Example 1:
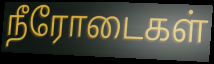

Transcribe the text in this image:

நீரோடைகள்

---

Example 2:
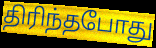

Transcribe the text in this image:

திரிந்தபோது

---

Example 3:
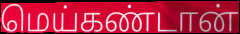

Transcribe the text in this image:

மெய்கண்டான்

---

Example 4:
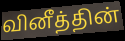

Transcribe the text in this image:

வினீத்தின்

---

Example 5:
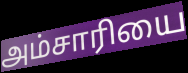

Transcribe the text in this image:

அம்சாரியை